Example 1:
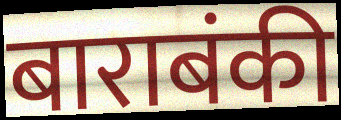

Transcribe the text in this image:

बाराबंकी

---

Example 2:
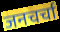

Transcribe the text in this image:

जनचर्चा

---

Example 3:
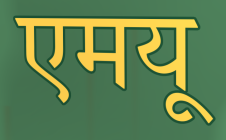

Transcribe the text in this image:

एमयू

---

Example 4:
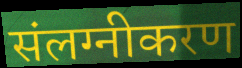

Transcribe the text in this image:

संलग्‍नीकरण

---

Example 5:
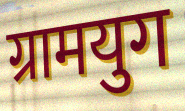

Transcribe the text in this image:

ग्रामयुग